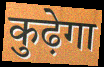
कुढ़ेगा